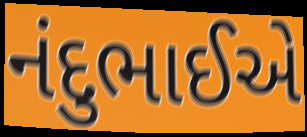
નંદુભાઈએ